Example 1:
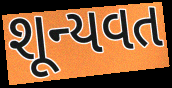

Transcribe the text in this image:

શૂન્યવત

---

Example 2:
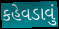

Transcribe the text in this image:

કહેવડાવું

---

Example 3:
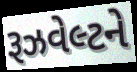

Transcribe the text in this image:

રૂઝવેલ્ટને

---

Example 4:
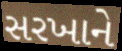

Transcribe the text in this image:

સરખાને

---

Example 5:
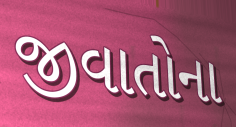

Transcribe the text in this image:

જીવાતોના